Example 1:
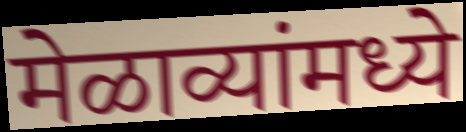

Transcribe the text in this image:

मेळाव्यांमध्ये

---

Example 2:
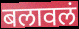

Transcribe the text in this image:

बलावलं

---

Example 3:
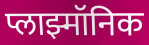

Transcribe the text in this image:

प्लाझ्मॉनिक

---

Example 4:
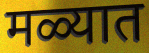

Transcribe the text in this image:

मळ्यात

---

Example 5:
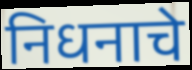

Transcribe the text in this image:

निधनाचे